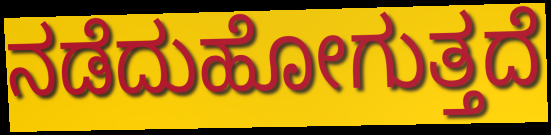
ನಡೆದುಹೋಗುತ್ತದೆ